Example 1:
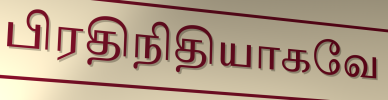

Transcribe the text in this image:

பிரதிநிதியாகவே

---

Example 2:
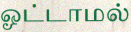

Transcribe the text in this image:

ஓட்டாமல்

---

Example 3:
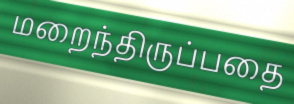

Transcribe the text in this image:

மறைந்திருப்பதை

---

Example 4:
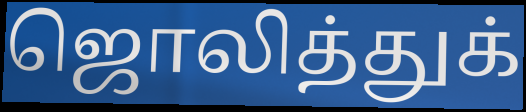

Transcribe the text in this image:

ஜொலித்துக்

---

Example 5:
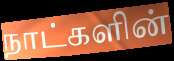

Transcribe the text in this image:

நாட்களின்